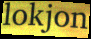
lokjon